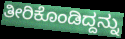
ತೀರಿಕೊಂಡಿದ್ದನ್ನು